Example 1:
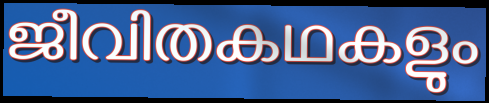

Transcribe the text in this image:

ജീവിതകഥകളും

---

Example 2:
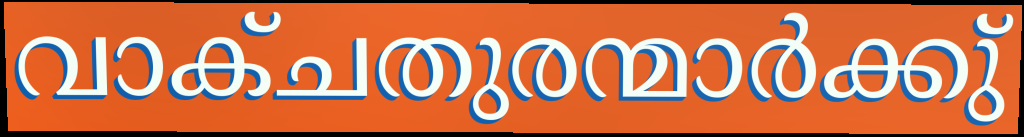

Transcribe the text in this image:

വാക്ചതുരന്മാർക്കു്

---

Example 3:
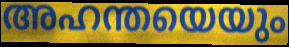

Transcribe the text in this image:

അഹന്തയെയും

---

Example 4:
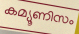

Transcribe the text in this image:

കമ്യൂണിസം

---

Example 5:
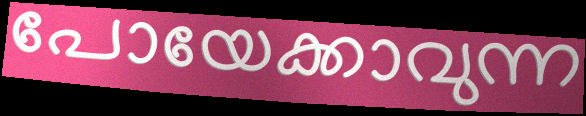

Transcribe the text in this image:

പോയേക്കാവുന്ന